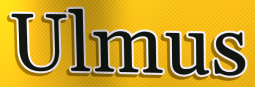
Ulmus